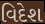
વિદેશ